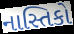
નાસ્તિકો